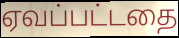
ஏவப்பட்டதை